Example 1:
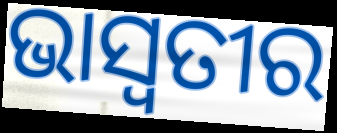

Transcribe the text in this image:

ଭାସ୍ୱତୀର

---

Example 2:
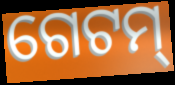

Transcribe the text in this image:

ଗେଟମ୍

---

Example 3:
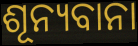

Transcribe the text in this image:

ଶୂନ୍ୟବାନା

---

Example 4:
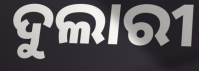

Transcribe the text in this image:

ଦୁଲାରୀ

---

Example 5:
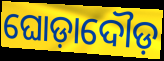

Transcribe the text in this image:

ଘୋଡ଼ାଦୌଡ଼